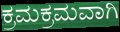
ಕ್ರಮಕ್ರಮವಾಗಿ